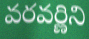
వరవర్ణిని